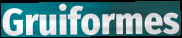
Gruiformes